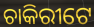
ଚାକିରୀଟେ